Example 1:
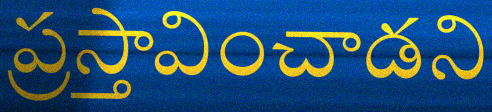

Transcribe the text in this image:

ప్రస్తావించాడని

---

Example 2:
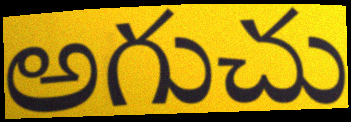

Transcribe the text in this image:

అగుచు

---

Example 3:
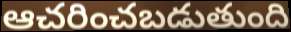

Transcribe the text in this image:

ఆచరించబడుతుంది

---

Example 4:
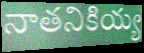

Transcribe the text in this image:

నాతనికియ్య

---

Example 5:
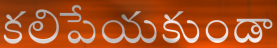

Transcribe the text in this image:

కలిపేయకుండా